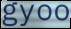
gyoo